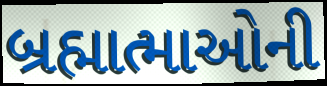
બ્રહ્માત્માઓની